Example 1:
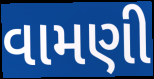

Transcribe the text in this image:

વામણી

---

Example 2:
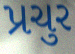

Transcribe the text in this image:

પ્રચુર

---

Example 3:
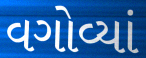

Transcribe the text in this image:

વગોવ્યાં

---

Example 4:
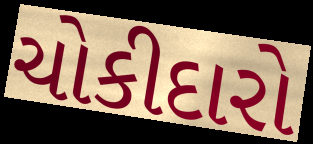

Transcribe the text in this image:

ચોકીદારો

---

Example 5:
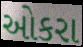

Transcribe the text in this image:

ઓકરા